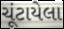
ચૂંટાયેલા